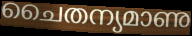
ചൈതന്യമാണു